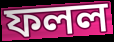
ফলল